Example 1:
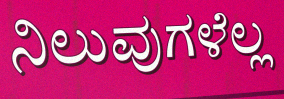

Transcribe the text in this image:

ನಿಲುವುಗಳೆಲ್ಲ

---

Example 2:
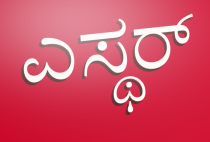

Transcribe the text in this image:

ಎಸ್ಥರ್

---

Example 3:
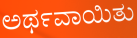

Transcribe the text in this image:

ಅರ್ಥವಾಯಿತು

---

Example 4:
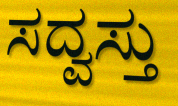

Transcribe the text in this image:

ಸದ್ವಸ್ತು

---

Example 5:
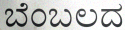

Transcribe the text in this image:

ಬೆಂಬಲದ